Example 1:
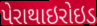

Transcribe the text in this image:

પેરાથાઇરોઇડ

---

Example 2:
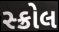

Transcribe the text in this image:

સ્ક્રોલ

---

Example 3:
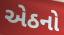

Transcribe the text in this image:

એઠનો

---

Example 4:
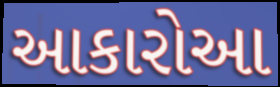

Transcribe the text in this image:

આકારોઆ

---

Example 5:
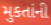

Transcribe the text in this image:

મુકતાંની